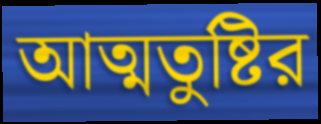
আত্মতুষ্টির